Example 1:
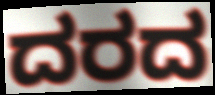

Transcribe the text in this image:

ದರದ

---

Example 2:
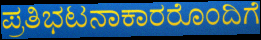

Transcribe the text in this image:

ಪ್ರತಿಭಟನಾಕಾರರೊಂದಿಗೆ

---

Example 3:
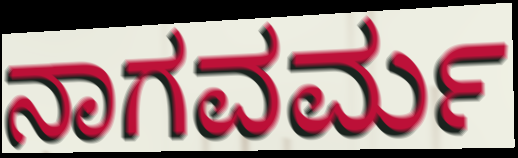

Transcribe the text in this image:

ನಾಗವರ್ಮ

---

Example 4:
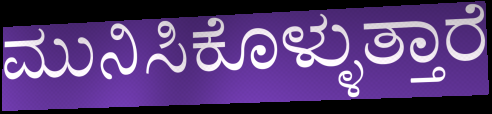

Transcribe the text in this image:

ಮುನಿಸಿಕೊಳ್ಳುತ್ತಾರೆ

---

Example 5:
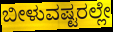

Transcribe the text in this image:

ಬೀಳುವಷ್ಟರಲ್ಲೇ